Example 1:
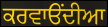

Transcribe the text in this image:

ਕਰਵਾੳਂਦੀਆ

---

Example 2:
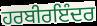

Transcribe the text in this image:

ਹਰਬੀਰਇੰਦਰ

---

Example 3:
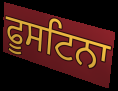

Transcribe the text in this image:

ਫੂਸਟਿਨਾ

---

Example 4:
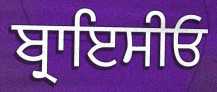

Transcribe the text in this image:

ਬ੍ਰਾਇਸੀਓ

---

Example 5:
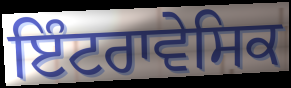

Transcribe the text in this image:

ਇੰਟਰਾਵੇਸਿਕ